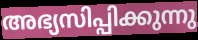
അഭ്യസിപ്പിക്കുന്നു